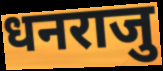
धनराजु